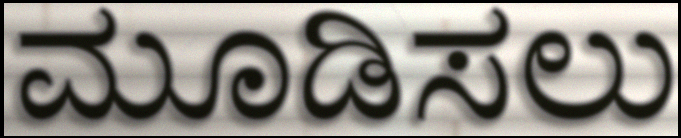
ಮೂಡಿಸಲು